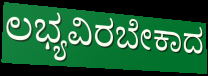
ಲಭ್ಯವಿರಬೇಕಾದ